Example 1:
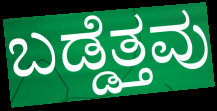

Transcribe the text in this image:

ಬಡ್ಡೆತ್ತವು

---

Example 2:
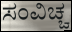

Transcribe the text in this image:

ಸಂವಿಚ್ಚ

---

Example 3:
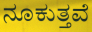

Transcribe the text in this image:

ನೂಕುತ್ತವೆ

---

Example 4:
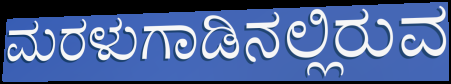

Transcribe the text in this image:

ಮರಳುಗಾಡಿನಲ್ಲಿರುವ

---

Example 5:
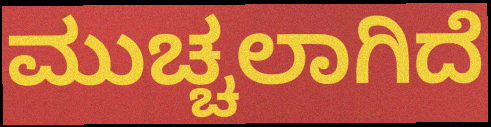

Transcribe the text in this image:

ಮುಚ್ಚಲಾಗಿದೆ